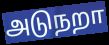
அடுநறா